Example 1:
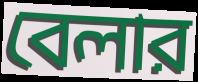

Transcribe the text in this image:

বেলার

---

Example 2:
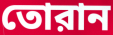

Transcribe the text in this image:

তোরান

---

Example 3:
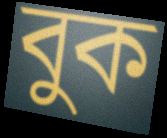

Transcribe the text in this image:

বুক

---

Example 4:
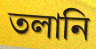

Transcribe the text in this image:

তলানি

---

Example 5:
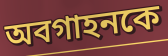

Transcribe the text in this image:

অবগাহনকে